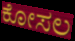
ಕೋಸಲ